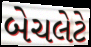
બેચલેટે